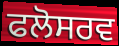
ਫਲੋਸਰਵ